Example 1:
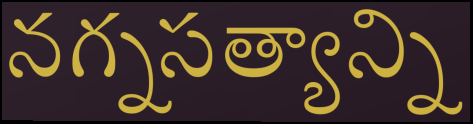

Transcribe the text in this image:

నగ్నసత్యాన్ని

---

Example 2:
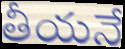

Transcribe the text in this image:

తీయనే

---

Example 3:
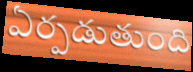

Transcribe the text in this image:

ఏర్పడుతుంది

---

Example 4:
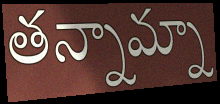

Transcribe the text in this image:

తన్నామ్నా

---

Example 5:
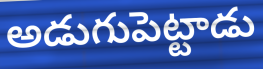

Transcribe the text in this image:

అడుగుపెట్టాడు